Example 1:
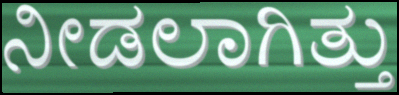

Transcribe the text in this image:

ನೀಡಲಾಗಿತ್ತು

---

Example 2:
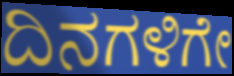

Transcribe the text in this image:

ದಿನಗಳಿಗೇ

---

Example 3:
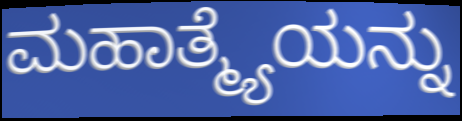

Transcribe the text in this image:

ಮಹಾತ್ಮ್ಯೆಯನ್ನು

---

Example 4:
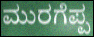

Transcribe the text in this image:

ಮುರಗೆಪ್ಪ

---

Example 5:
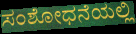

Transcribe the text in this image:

ಸಂಶೋಧನೆಯಲ್ಲಿ